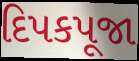
દિપકપૂજા